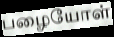
பழையோள்